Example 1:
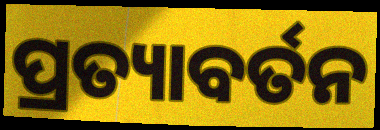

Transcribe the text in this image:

ପ୍ରତ୍ୟାବର୍ତନ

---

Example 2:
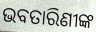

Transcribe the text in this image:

ଭବତାରିଣୀଙ୍କ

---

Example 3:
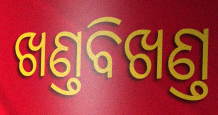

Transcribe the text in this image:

ଖଣ୍ତବିଖଣ୍ତ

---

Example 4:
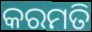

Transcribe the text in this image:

କରମତି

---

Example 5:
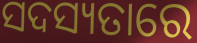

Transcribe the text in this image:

ସଦସ୍ୟତାରେ